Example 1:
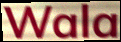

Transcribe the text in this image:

Wala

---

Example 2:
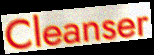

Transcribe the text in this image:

Cleanser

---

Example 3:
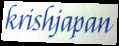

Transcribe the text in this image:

krishjapan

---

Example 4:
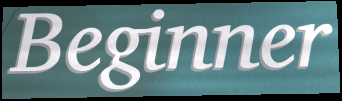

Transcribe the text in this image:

Beginner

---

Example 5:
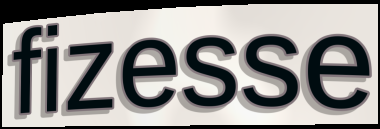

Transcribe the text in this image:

fizesse